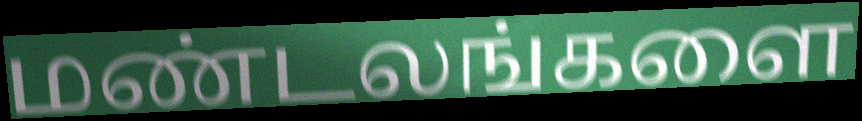
மண்டலங்களை